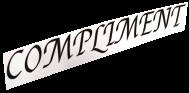
COMPLIMENT